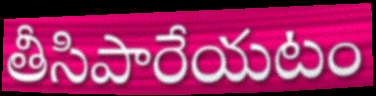
తీసిపారేయటం